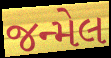
જન્મેલ